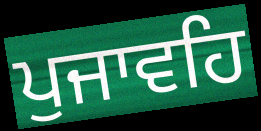
ਪੁਜਾਵਹਿ